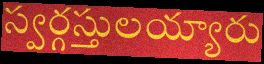
స్వర్గస్తులయ్యారు